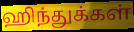
ஹிந்துக்கள்